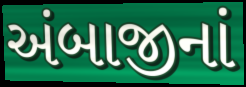
અંબાજીનાં